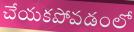
చేయకపోవడంలో